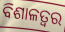
ବିଶାଳତ୍ୱର